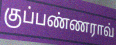
குப்பண்ணராவ்